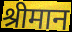
श्रीमान